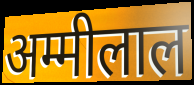
अम्मीलाल